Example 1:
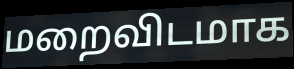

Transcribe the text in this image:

மறைவிடமாக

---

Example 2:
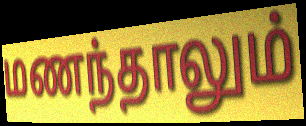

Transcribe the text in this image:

மணந்தாலும்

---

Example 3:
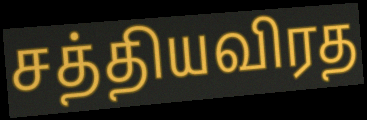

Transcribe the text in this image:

சத்தியவிரத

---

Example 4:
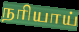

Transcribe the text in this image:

நரியாய்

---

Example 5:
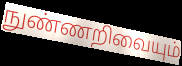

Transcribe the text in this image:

நுண்ணறிவையும்